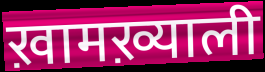
ख़ामख़्याली